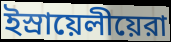
ইস্রায়েলীয়েরা